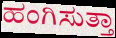
ಹಂಗಿಸುತ್ತಾ